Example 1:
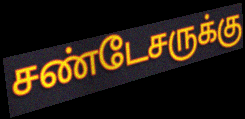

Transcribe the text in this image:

சண்டேசருக்கு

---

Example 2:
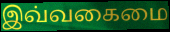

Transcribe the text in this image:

இவ்வகைமை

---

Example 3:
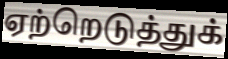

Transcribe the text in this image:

ஏற்றெடுத்துக்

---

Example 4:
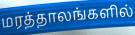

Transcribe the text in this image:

மரத்தாலங்களில்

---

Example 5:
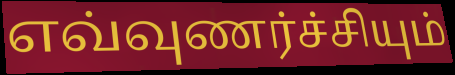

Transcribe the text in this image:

எவ்வுணர்ச்சியும்